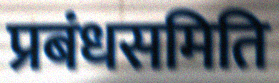
प्रबंधसमिति